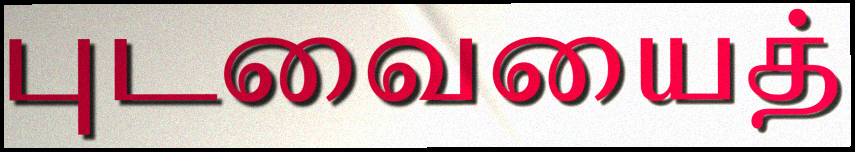
புடவையைத்